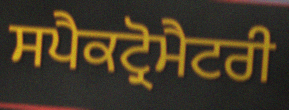
ਸਪੈਕਟ੍ਰੋਮੈਟਰੀ